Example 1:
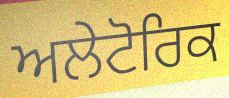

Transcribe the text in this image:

ਅਲੇਟੋਰਿਕ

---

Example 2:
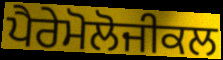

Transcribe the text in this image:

ਪੈਰੇਮੋਲੋਜੀਕਲ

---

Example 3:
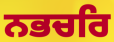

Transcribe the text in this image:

ਨਭਚਰਿ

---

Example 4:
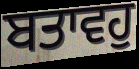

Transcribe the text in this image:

ਬਤਾਵਹੁ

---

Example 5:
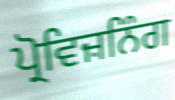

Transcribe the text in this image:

ਪ੍ਰੋਵਿਜ਼ਨਿੰਗ